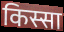
किस्सा